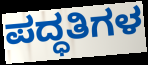
ಪದ್ಧತಿಗಳ